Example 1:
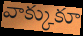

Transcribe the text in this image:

వాక్కుకూ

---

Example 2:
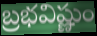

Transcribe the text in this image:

బ్రభవిష్ణుం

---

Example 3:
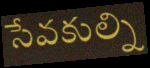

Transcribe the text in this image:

సేవకుల్ని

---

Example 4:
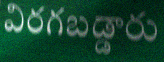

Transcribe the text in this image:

విరగబడ్డారు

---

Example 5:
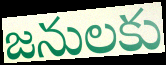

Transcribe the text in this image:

జనులకు